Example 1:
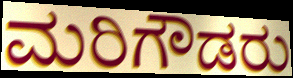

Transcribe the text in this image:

ಮರಿಗೌಡರು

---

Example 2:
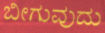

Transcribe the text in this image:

ಬೀಗುವುದು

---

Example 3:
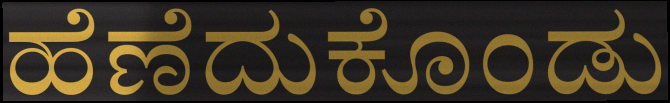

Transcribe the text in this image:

ಹೆಣೆದುಕೊಂಡು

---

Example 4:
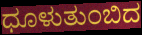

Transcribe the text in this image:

ಧೂಳುತುಂಬಿದ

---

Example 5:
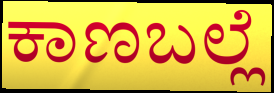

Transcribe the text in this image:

ಕಾಣಬಲ್ಲೆ